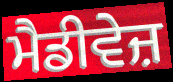
ਮੈਡੀਵੇਜ਼